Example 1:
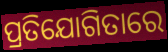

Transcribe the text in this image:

ପ୍ରତିଯୋଗିତାରେ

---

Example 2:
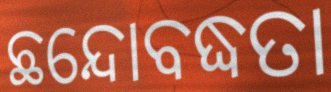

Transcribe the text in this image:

ଛନ୍ଦୋବଦ୍ଧତା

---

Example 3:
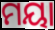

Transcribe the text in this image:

ମୟା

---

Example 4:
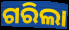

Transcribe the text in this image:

ଗରିଲା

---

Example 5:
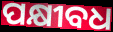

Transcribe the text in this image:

ପକ୍ଷୀବଧ